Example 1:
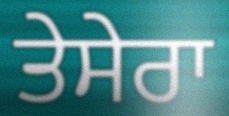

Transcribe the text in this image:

ਤੇਸੇਰਾ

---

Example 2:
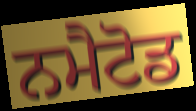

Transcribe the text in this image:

ਨਮੈਟੋਡ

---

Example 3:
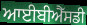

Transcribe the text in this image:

ਆਈਬੀਐੱਸਡੀ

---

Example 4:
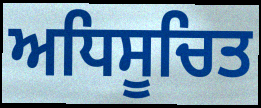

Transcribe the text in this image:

ਅਧਿਸੂਚਿਤ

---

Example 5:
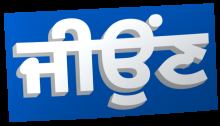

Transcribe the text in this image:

ਜੀਉਂਣ